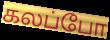
கலப்போ